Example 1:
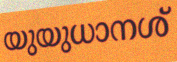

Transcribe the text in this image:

യുയുധാനശ്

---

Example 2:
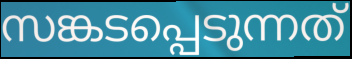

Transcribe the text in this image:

സങ്കടപ്പെടുന്നത്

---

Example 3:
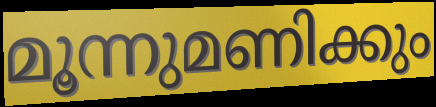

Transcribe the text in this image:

മൂന്നുമണിക്കും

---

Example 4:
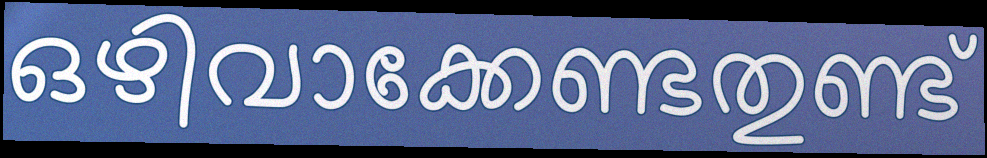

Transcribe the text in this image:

ഒഴിവാക്കേണ്ടതുണ്ട്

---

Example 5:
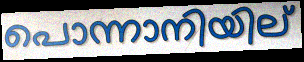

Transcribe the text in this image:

പൊന്നാനിയില്